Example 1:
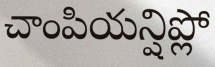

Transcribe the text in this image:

చాంపియన్షిప్లో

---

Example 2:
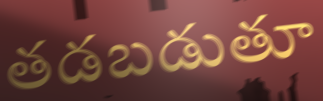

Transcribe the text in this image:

తడబడుతూ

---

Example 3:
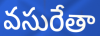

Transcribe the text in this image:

వసురేతా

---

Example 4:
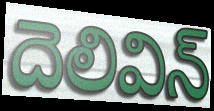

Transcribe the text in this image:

దెలివిన్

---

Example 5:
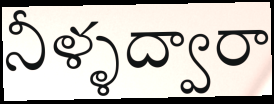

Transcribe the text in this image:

నీళ్ళద్వారా